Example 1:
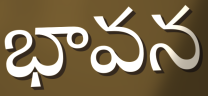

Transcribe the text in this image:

భావన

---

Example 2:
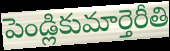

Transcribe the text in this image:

పెండ్లికుమార్తెరీతి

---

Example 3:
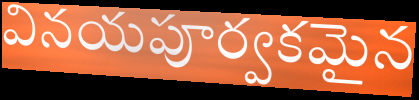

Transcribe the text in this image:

వినయపూర్వకమైన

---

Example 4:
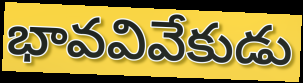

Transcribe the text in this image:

భావవివేకుడు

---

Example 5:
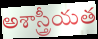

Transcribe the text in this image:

అశాస్త్రీయత